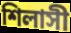
শিলাসী